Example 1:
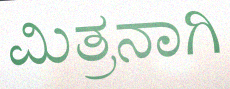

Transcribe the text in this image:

ಮಿತ್ರನಾಗಿ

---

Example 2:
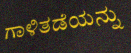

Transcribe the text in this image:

ಗಾಳಿತಡೆಯನ್ನು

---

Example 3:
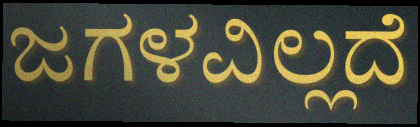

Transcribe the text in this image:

ಜಗಳವಿಲ್ಲದೆ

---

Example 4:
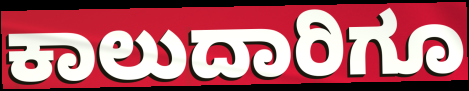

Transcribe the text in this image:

ಕಾಲುದಾರಿಗೂ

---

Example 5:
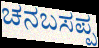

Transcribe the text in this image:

ಚನಬಸಪ್ಪ